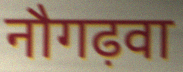
नौगढ़वा